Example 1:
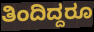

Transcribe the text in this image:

ತಿಂದಿದ್ದರೂ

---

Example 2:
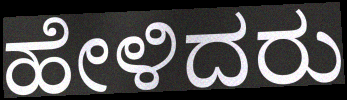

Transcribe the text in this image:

ಹೇಳಿದರು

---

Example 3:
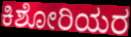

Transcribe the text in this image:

ಕಿಶೋರಿಯರ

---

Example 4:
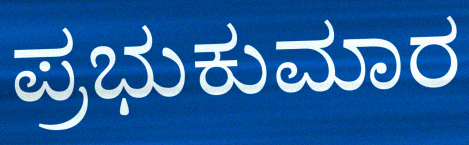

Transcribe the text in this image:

ಪ್ರಭುಕುಮಾರ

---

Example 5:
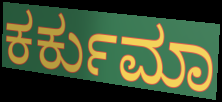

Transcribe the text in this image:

ಕರ್ಕುಮಾ